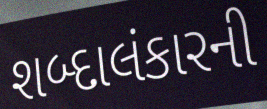
શબ્દાલંકારની